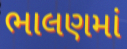
ભાલણમાં